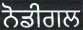
ਨੋਡੀਗਲ